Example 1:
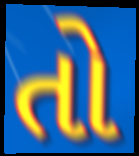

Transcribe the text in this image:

તો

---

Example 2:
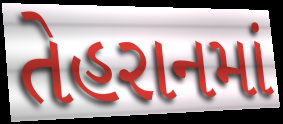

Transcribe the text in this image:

તેહરાનમાં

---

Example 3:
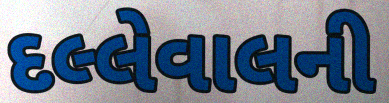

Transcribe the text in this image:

દલ્લેવાલની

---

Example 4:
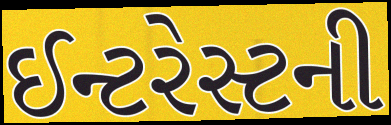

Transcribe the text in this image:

ઈન્ટરેસ્ટની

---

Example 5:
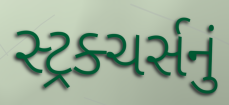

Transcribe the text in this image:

સ્ટ્રક્ચર્સનું